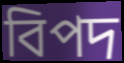
বিপদ